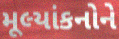
મૂલ્યાંકનોને